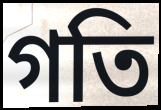
গতি